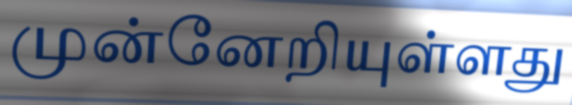
முன்னேறியுள்ளது